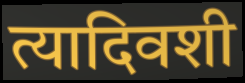
त्यादिवशी